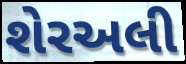
શેરઅલી